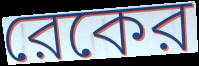
রেকের